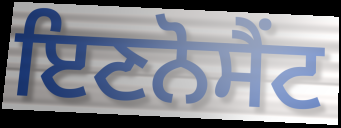
ਇਣਨੋਸੈਂਟ